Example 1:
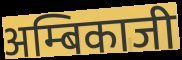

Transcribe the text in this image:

अम्बिकाजी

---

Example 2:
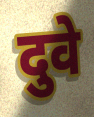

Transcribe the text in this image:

दुवे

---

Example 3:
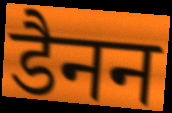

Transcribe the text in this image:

डैनन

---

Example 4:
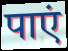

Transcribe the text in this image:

पाएं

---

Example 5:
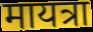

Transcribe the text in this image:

मायत्रा